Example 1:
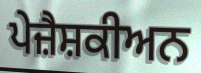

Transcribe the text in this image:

ਪੇਜ਼ੈਸ਼ਕੀਅਨ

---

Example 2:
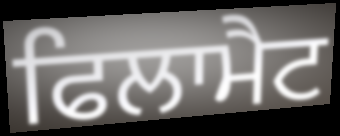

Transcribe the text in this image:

ਫਿਲਾਮੈਟ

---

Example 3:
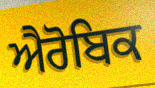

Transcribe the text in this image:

ਐਰੋਬਿਕ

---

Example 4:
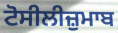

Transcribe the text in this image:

ਟੋਸੀਲੀਜ਼ੁਮਾਬ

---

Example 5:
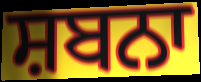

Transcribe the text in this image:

ਸ਼ਬਨਾ